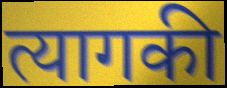
त्यागकी